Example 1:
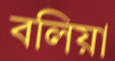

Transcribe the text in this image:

বলিয়া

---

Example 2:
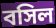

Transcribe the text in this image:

বসিল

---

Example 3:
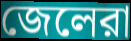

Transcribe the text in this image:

জেলেরা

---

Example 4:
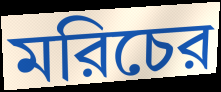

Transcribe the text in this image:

মরিচের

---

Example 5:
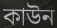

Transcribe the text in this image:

কাউন